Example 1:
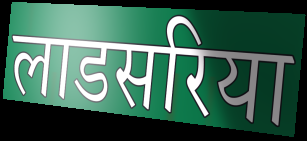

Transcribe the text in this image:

लाडसरिया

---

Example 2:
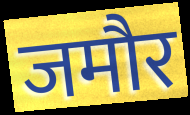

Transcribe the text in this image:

जमौर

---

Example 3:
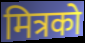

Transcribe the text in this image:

मित्रको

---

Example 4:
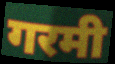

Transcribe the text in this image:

गरमी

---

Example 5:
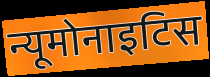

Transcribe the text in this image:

न्यूमोनाइटिस